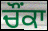
ਚੌੰਕਾ